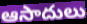
ఆసాదులు